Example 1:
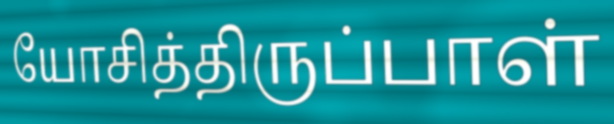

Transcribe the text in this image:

யோசித்திருப்பாள்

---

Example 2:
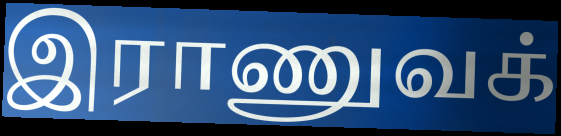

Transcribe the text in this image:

இராணுவக்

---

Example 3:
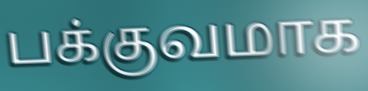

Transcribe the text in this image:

பக்குவமாக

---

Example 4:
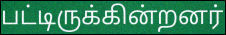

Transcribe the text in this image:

பட்டிருக்கின்றனர்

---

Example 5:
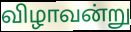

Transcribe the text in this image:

விழாவன்று